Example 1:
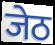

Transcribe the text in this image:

जेठ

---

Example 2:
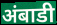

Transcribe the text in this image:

अंबाडी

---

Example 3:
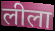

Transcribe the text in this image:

लीला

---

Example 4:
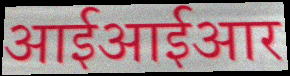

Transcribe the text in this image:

आईआईआर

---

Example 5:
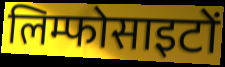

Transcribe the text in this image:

लिम्फोसाइटों